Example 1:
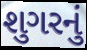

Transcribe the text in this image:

શુગરનું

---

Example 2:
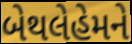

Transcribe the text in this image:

બેથલેહેમને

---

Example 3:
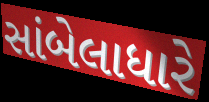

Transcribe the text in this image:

સાંબેલાધારે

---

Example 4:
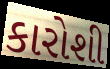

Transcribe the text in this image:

કારોશી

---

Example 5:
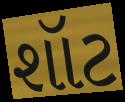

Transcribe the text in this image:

શૉટ